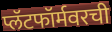
प्लॅटफॉर्मवरची